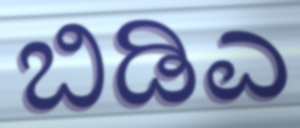
ಬಿಡಿಎ